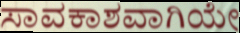
ಸಾವಕಾಶವಾಗಿಯೇ